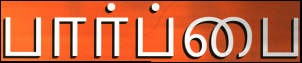
பார்ப்பை